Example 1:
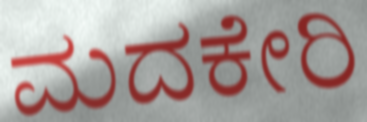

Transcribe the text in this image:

ಮದಕೇರಿ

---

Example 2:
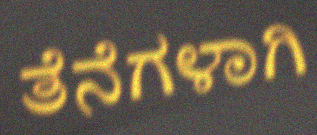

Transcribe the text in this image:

ತೆನೆಗಳಾಗಿ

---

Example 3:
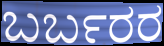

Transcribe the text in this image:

ಬರ್ಬರರ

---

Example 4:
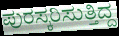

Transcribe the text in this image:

ಪುರಸ್ಕರಿಸುತ್ತಿದ್ದ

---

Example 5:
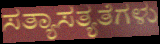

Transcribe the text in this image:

ಸತ್ಯಾಸತ್ಯತೆಗಳು